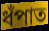
ধঁপাত